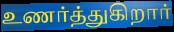
உணர்த்துகிறார்